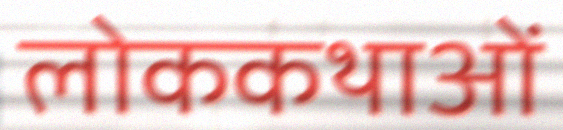
लोककथाओं